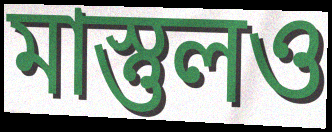
মাস্তুলও